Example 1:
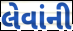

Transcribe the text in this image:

લેવાંની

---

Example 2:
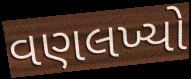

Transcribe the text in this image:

વણલખ્યો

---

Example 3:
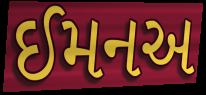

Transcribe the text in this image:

ઈમનઅ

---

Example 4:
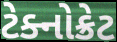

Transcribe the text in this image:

ટેક્નોક્રેટ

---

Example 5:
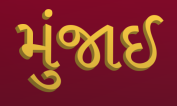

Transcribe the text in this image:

મુંજાઈ